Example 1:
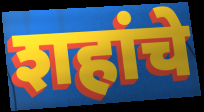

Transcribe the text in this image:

शहांचे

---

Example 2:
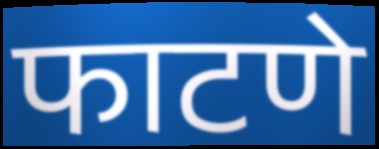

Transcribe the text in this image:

फाटणे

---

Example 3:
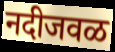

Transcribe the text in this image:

नदीजवळ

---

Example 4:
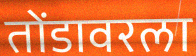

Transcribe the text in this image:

तोंडावरला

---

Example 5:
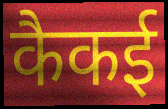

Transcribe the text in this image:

कैकई